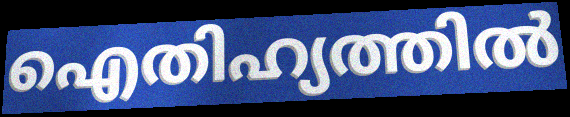
ഐതിഹ്യത്തിൽ